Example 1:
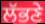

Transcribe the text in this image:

ਲੱਭਣੇ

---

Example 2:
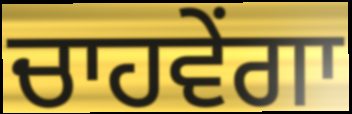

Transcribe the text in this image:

ਚਾਹਵੇਂਗਾ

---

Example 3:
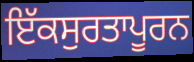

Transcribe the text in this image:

ਇੱਕਸੁਰਤਾਪੂਰਨ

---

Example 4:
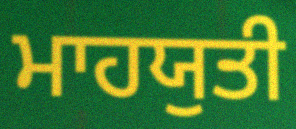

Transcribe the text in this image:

ਮਾਹਯੁਤੀ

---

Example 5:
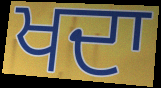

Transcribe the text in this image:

ਖਦਾ